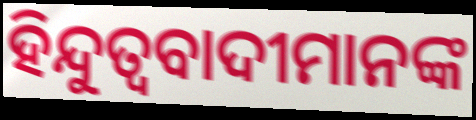
ହିନ୍ଦୁତ୍ଵବାଦୀମାନଙ୍କ